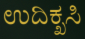
ಉದಿಕ್ಖಸಿ